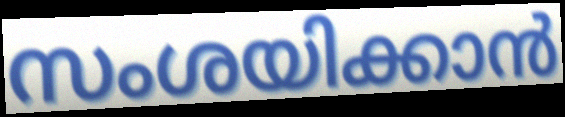
സംശയിക്കാൻ